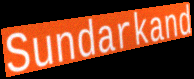
Sundarkand